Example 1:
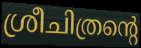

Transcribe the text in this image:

ശ്രീചിത്രന്റെ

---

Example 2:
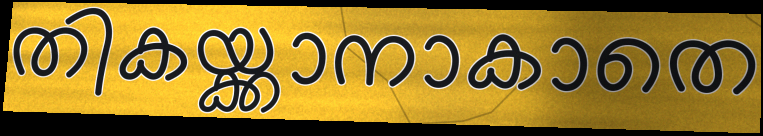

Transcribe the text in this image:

തികയ്ക്കാനാകാതെ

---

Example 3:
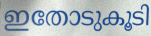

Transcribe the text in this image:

ഇതോടുകൂടി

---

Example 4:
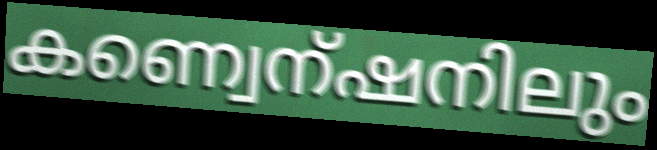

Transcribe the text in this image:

കണ്വെന്ഷനിലും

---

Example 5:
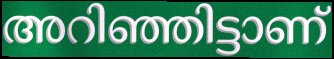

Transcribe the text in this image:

അറിഞ്ഞിട്ടാണ്